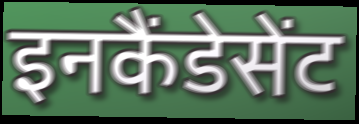
इनकैंडेसेंट